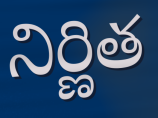
నిర్ణిత